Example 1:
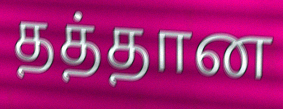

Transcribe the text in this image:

தத்தான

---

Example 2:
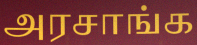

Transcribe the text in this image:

அரசாங்க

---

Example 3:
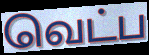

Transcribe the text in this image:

வெட்ப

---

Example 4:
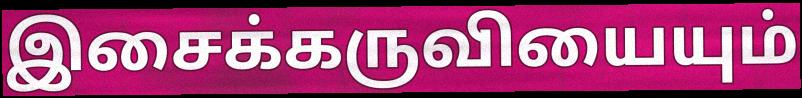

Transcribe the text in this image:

இசைக்கருவியையும்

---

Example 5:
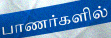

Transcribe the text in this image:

பாணர்களில்